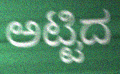
ಅಟ್ಟಿದ